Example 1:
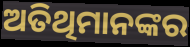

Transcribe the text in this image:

ଅତିଥିମାନଙ୍କର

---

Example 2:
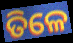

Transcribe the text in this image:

ତିଳେ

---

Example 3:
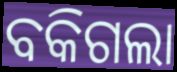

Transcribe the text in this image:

ବକିଗଲା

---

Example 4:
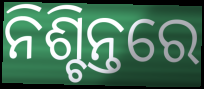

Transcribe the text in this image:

ନିଶ୍ଚିନ୍ତରେ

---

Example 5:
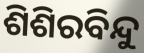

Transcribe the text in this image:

ଶିଶିରବିନ୍ଦୁ